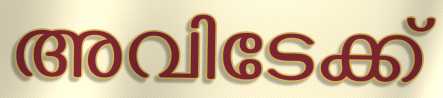
അവിടേക്ക്